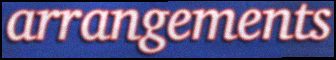
arrangements